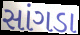
સાંગડા